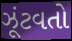
ઝૂંટવતો